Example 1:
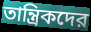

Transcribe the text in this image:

তান্ত্রিকদের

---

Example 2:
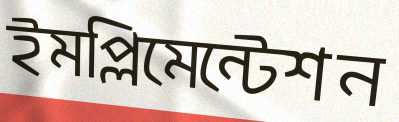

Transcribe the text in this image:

ইমপ্লিমেন্টেশন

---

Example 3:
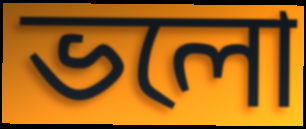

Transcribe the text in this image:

ভলো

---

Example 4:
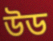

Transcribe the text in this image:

উড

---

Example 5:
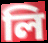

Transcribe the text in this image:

লি